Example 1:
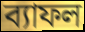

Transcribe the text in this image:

ব্যাফল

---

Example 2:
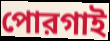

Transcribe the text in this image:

পোরগাই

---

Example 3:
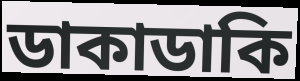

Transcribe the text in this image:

ডাকাডাকি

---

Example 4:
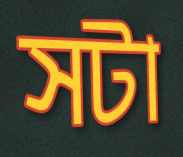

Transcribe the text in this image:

সটা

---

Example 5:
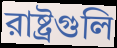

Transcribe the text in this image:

রাষ্ট্রগুলি